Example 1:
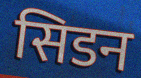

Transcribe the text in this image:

सिडन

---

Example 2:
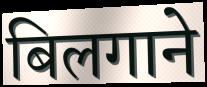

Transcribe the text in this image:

बिलगाने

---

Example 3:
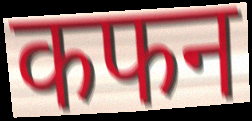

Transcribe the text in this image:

कफन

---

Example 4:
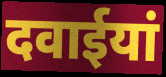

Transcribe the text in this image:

दवाईयां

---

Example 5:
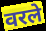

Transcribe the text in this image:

वरले